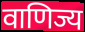
वाणिज्य